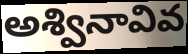
అశ్వినావివ